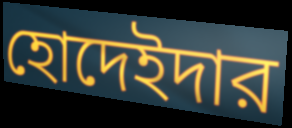
হোদেইদার